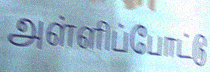
அள்ளிப்போட்டு